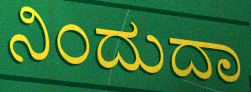
ನಿಂದುದಾ